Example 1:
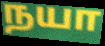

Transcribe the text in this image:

நயா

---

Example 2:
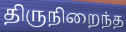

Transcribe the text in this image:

திருநிறைந்த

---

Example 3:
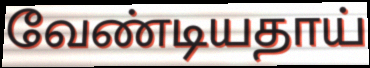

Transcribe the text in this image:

வேண்டியதாய்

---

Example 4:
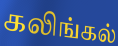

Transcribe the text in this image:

கலிங்கல்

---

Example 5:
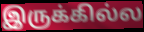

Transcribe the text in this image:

இருக்கில்ல